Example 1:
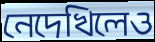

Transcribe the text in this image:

নেদেখিলেও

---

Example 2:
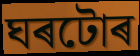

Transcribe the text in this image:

ঘৰটোৰ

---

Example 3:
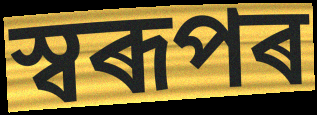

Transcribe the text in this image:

স্বৰূপৰ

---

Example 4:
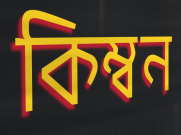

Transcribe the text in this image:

কিম্বন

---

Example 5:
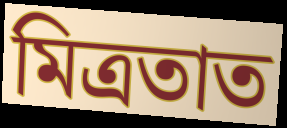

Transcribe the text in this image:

মিত্ৰতাত